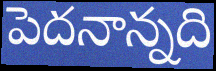
పెదనాన్నది